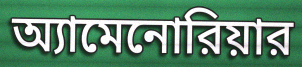
অ্যামেনোরিয়ার